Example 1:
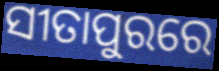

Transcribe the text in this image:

ସୀତାପୁରରେ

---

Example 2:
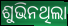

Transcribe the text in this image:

ଶୁଭିନଥିଲା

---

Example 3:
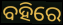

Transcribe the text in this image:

ବହିରେ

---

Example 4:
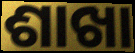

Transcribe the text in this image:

ଶାଖା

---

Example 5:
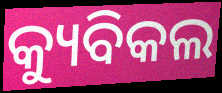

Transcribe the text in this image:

କ୍ୟୁବିକଲ